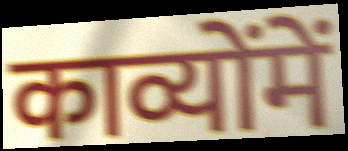
काव्योंमें